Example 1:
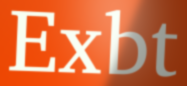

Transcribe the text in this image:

Exbt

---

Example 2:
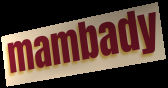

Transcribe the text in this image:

mambady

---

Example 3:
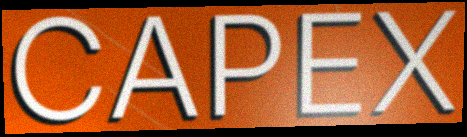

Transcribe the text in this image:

CAPEX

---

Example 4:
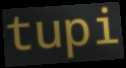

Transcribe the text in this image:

tupi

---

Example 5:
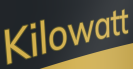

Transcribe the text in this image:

Kilowatt